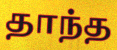
தாந்த